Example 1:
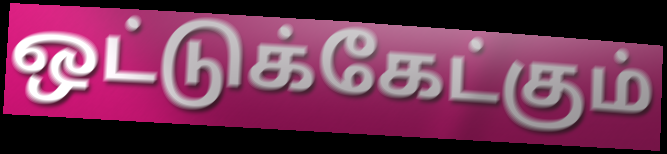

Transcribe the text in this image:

ஒட்டுக்கேட்கும்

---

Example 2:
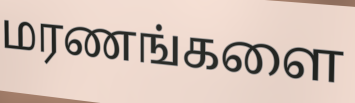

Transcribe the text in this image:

மரணங்களை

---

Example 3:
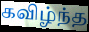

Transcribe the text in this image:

கவிழ்ந்த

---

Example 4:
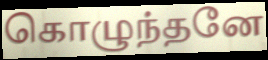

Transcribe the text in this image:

கொழுந்தனே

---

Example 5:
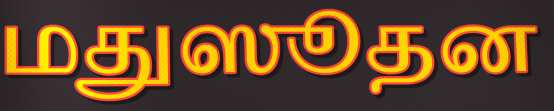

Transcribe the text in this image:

மதுஸூதன